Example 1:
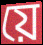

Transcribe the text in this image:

য়ে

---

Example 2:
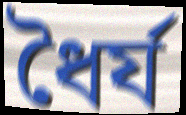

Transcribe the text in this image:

ধৈৰ্য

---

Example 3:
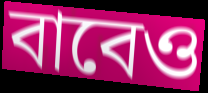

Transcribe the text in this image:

বাবেও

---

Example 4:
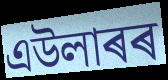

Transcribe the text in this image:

এউলাৰৰ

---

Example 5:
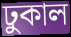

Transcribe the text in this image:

ঢুকাল